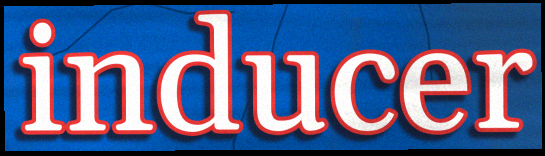
inducer